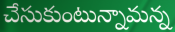
చేసుకుంటున్నామన్న